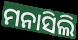
ମନାସିଲି